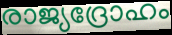
രാജ്യദ്രോഹം